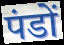
पंडों